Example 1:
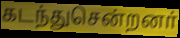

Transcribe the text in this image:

கடந்துசென்றனர்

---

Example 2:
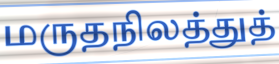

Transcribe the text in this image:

மருதநிலத்துத்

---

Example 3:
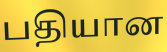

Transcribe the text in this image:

பதியான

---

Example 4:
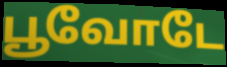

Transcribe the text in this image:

பூவோடே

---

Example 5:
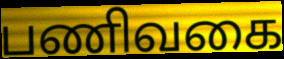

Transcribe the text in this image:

பணிவகை